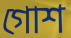
গোশ